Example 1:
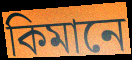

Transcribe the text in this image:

কিমানে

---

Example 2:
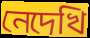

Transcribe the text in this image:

নেদেখি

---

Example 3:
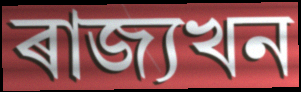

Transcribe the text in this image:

ৰাজ্যখন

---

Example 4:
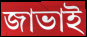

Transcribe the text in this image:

জাভাই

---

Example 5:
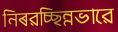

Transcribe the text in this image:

নিৰৱচ্ছিন্নভাৱে